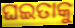
ଘଇତାକୁ